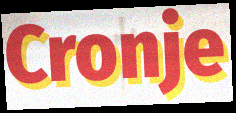
Cronje